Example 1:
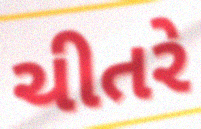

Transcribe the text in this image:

ચીતરે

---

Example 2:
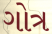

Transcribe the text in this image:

ગોત્ર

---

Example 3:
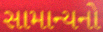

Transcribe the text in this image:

સામાન્યનો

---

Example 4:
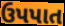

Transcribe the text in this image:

ઉપપાત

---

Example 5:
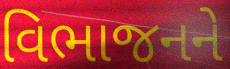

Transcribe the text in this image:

વિભાજનને